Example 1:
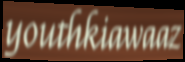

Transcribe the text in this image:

youthkiawaaz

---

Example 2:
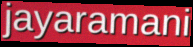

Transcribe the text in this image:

jayaramani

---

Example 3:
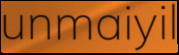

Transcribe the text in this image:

unmaiyil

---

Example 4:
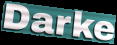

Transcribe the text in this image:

Darke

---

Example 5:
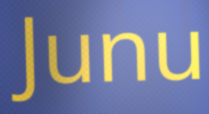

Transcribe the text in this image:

Junu